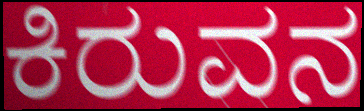
ಕಿರುವನ